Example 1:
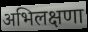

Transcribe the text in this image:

अभिलक्षणा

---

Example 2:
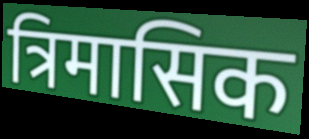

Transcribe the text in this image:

त्रिमासिक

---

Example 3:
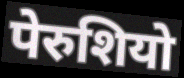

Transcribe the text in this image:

पेरुशियो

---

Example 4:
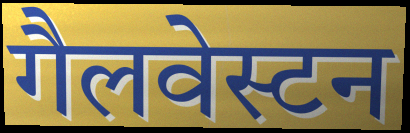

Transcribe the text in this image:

गैलवेस्टन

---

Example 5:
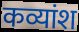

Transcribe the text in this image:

कव्यांश